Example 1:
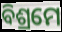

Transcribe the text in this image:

ବିଶ୍ରମେ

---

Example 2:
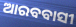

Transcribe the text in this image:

ଆରବବାସୀ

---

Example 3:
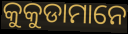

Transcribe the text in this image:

କୁକୁଡାମାନେ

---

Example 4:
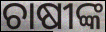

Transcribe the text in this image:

ଚାଷୀଙ୍କ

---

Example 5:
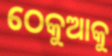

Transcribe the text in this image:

ଠେକୁଆକୁ